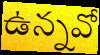
ఉన్నవో